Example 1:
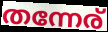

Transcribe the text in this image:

തന്നേര്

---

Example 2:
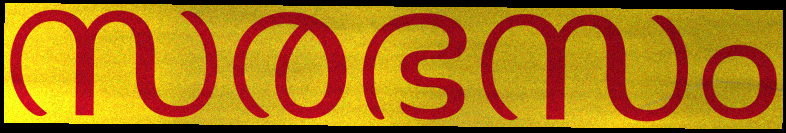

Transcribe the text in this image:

സരഭസം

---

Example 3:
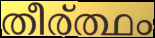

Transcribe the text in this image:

തീര്ത്ഥം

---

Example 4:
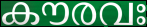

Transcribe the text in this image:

കൗരവഃ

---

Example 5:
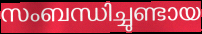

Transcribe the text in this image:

സംബന്ധിച്ചുണ്ടായ